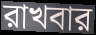
রাখবার